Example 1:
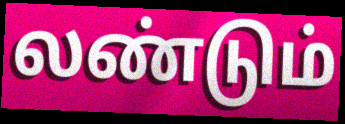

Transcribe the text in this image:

லண்டும்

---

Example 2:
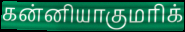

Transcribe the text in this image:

கன்னியாகுமரிக்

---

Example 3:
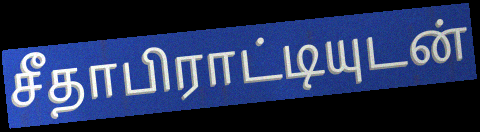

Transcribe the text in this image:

சீதாபிராட்டியுடன்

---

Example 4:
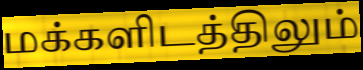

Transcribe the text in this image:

மக்களிடத்திலும்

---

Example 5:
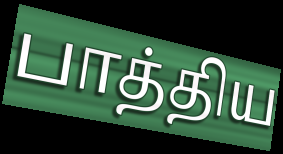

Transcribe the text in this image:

பாத்திய